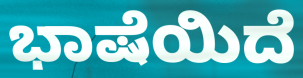
ಭಾಷೆಯಿದೆ